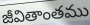
జీవితాంతము